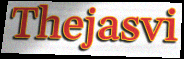
Thejasvi